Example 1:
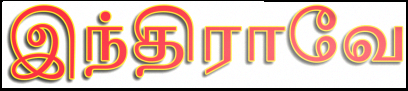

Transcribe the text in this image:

இந்திராவே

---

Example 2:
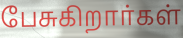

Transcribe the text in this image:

பேசுகிறார்கள்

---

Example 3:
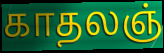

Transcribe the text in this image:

காதலஞ்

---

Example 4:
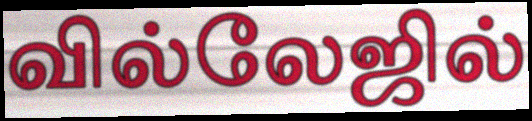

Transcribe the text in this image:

வில்லேஜில்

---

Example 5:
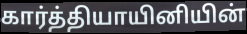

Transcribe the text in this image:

கார்த்தியாயினியின்